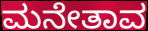
ಮನೇತಾವ